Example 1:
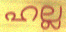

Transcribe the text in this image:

ഹല്ല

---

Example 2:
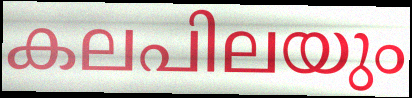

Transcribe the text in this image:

കലപിലയും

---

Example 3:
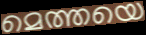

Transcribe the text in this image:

മെത്തയെ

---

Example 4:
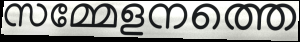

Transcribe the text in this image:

സമ്മേളനത്തെ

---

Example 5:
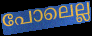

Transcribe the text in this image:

പോലെല്ല